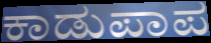
ಕಾಡುಪಾಪ